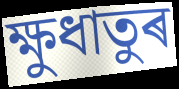
ক্ষুধাতুৰ